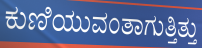
ಕುಣಿಯುವಂತಾಗುತ್ತಿತ್ತು